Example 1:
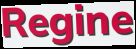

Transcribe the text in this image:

Regine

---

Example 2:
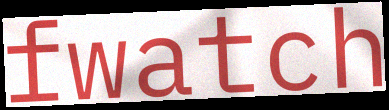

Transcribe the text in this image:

fwatch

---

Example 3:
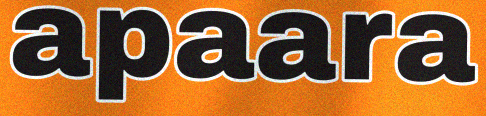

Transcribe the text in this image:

apaara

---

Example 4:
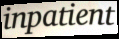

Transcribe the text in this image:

inpatient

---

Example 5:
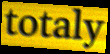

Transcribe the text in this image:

totaly